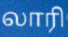
லாரி